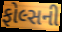
ફોલ્સની